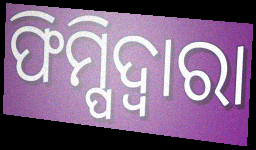
ଫିମ୍ପିଦ୍ଵାରା